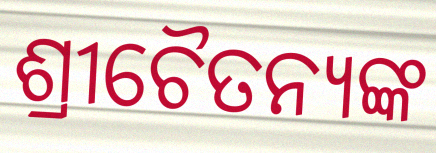
ଶ୍ରୀଚୈତନ୍ୟଙ୍କ